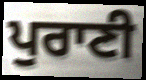
ਪੁਰਾਣੀ